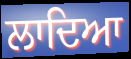
ਲਾਦਿਆ